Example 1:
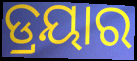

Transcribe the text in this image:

ଡ୍ରୟାର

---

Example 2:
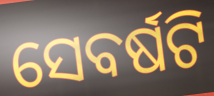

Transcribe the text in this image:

ସେବର୍ଷଟି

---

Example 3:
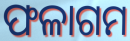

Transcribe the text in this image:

ଫଳାଗମ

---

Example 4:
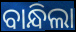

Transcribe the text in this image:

ବାନ୍ଧିଲା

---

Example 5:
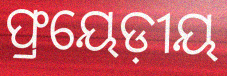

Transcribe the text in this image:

ଫ୍ରୟେଡ଼ୀୟ